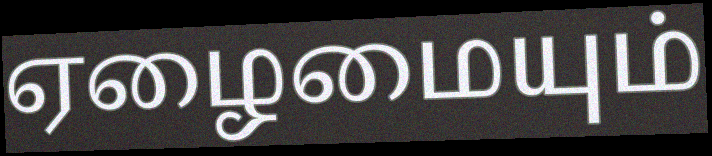
ஏழைமையும்